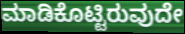
ಮಾಡಿಕೊಟ್ಟಿರುವುದೇ